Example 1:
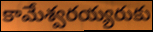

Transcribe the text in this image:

కామేశ్వరయ్యరుకు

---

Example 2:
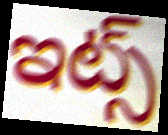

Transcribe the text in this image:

ఇట్స్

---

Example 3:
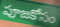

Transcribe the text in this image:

పూజకోసం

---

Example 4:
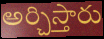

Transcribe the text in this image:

అర్చిస్తారు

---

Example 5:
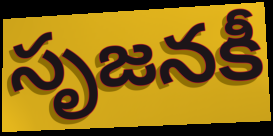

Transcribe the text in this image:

సృజనకీ